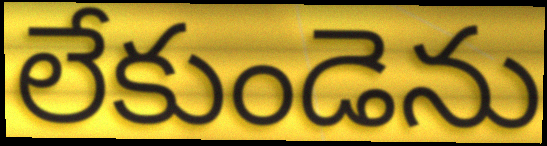
లేకుండెను